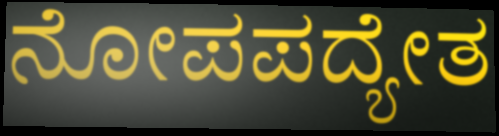
ನೋಪಪದ್ಯೇತ